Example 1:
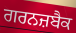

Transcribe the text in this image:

ਗਰਨਜ਼ਬੈਕ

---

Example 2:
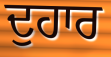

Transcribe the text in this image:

ਦੁਹਾਰ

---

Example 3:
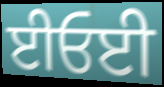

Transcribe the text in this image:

ਈਓਈ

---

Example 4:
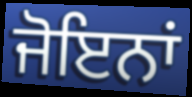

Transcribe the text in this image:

ਜੋਇਨਾਂ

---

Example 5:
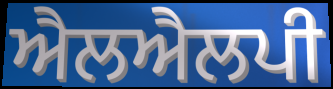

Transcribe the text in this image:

ਐਲਐਲਪੀ